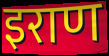
इराण